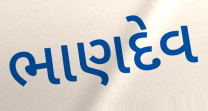
ભાણદેવ